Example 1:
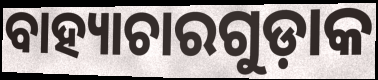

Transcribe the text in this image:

ବାହ୍ୟାଚାରଗୁଡ଼ାକ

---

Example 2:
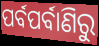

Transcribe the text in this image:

ପର୍ବପର୍ବାଣିରୁ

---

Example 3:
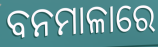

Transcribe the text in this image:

ବନମାଳାରେ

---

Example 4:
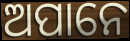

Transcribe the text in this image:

ଅପାନେ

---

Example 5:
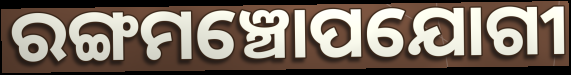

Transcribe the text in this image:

ରଙ୍ଗମଞ୍ଚୋପଯୋଗୀ